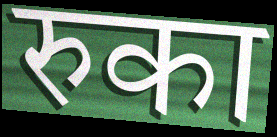
रुका